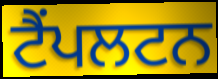
ਟੈਂਪਲਟਨ